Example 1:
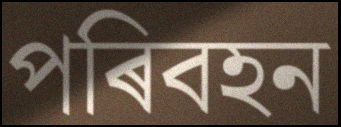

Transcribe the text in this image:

পৰিবহন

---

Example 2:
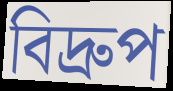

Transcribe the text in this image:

বিদ্ৰুপ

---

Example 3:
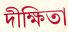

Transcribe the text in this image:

দীক্ষিতা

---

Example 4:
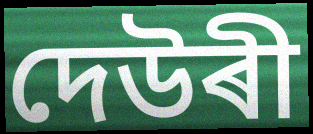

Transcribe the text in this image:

দেউৰী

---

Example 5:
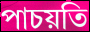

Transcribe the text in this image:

পাচয়তি